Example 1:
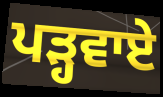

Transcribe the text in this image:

ਪੜ੍ਹਵਾਏ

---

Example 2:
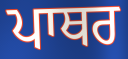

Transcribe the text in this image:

ਪਾਥਰ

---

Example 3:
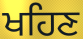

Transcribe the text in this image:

ਖਹਿਣ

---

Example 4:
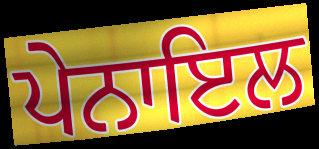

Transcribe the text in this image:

ਪੇਨਾਇਲ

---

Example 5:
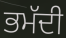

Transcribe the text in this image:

ਭਮੱਦੀ